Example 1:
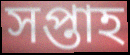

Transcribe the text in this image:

সপ্তাহ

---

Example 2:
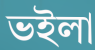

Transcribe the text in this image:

ভইলা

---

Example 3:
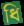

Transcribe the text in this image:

ধি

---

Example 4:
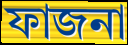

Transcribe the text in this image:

ফাজনা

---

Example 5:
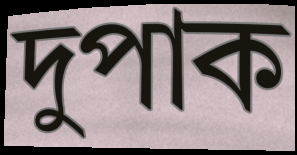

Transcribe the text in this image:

দুপাক